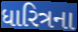
ધારિત્રના